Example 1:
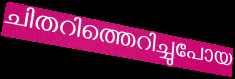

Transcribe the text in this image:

ചിതറിത്തെറിച്ചുപോയ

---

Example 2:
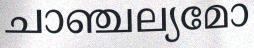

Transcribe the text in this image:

ചാഞ്ചല്യമോ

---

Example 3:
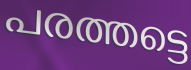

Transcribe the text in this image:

പരത്തട്ടെ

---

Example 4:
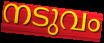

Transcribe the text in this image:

നടുവം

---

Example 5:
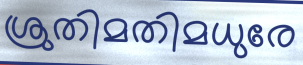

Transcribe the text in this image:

ശ്രുതിമതിമധുരേ